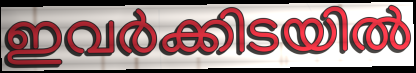
ഇവർക്കിടയിൽ